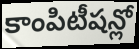
కాంపిటీషన్లో